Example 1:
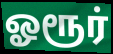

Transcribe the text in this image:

ஓரூர்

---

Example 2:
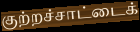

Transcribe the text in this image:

குற்றச்சாட்டைக்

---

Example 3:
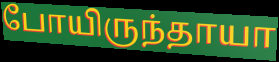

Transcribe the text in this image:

போயிருந்தாயா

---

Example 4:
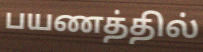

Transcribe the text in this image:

பயணத்தில்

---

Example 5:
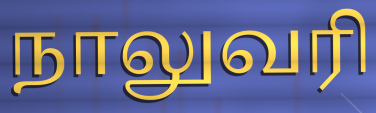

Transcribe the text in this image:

நாலுவரி